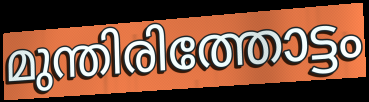
മുന്തിരിത്തോട്ടം